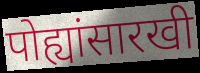
पोह्यांसारखी